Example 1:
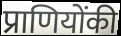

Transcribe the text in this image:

प्राणियोंकी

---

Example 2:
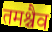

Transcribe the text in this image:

तमश्चैव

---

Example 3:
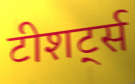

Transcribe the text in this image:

टीशर्ट्स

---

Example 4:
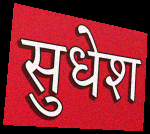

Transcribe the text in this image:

सुधेश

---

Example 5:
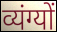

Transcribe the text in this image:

व्यंग्यों